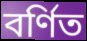
বৰ্ণিত